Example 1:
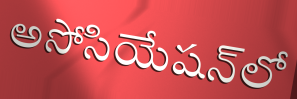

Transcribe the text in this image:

అసోసియేషన్‌లో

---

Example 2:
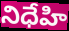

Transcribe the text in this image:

నిధేహి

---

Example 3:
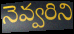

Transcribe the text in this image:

నెవ్వరిని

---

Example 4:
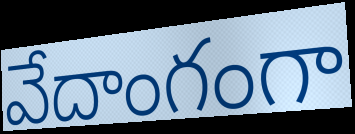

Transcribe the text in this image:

వేదాంగంగా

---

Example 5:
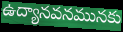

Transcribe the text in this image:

ఉద్యానవనమునకు